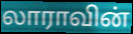
லாராவின்